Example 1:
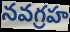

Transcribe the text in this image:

నవగ్రహ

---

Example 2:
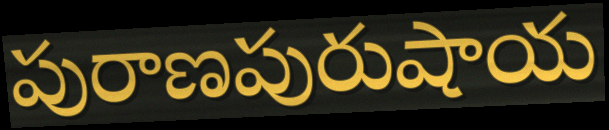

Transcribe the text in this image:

పురాణపురుషాయ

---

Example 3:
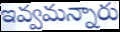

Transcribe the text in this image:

ఇవ్వమన్నారు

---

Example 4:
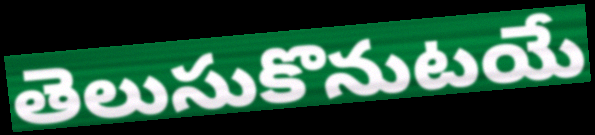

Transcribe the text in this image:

తెలుసుకొనుటయే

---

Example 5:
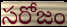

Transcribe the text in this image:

సరోజం